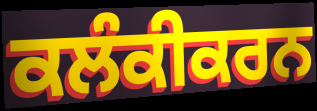
ਕਲੰਕੀਕਰਨ